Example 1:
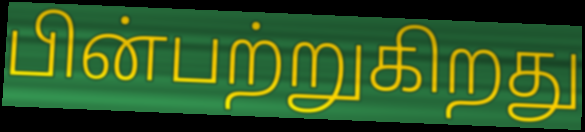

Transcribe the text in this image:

பின்பற்றுகிறது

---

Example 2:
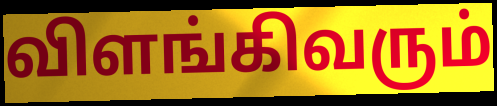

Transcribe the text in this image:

விளங்கிவரும்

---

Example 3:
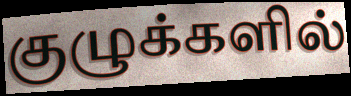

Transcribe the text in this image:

குழுக்களில்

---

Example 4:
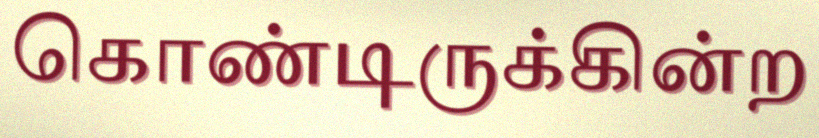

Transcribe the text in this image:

கொண்டிருக்கின்ற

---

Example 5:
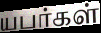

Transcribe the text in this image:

யபர்கள்